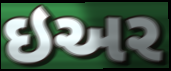
ઇઅર